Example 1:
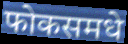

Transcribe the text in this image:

फोकसमधे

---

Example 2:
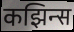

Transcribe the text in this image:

कझिन्स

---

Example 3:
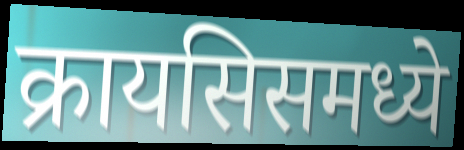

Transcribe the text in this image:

क्रायसिसमध्ये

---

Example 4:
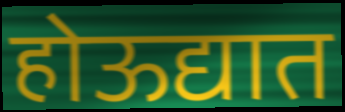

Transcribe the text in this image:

होऊद्यात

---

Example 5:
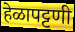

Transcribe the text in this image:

हेळापट्टणी